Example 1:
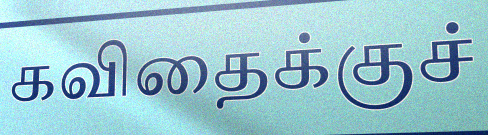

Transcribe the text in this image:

கவிதைக்குச்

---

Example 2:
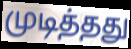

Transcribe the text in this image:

முடித்தது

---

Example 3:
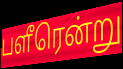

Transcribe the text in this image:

பளீரென்று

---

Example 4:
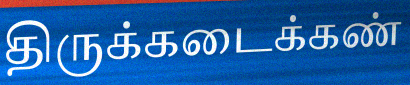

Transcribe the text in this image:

திருக்கடைக்கண்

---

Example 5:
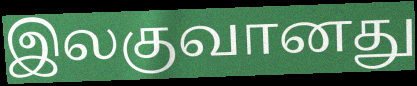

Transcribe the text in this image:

இலகுவானது